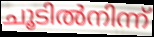
ചൂടിൽനിന്ന്